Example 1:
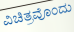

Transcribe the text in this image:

ವಿಚಿತ್ರವೊಂದು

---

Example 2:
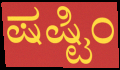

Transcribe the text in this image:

ಷಷ್ಟಿಂ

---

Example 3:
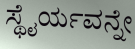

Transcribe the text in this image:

ಸ್ಥೈರ್ಯವನ್ನೇ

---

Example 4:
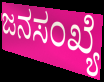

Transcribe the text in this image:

ಜನಸಂಖ್ಯೆ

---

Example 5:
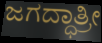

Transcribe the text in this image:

ಜಗದ್ಧಾತ್ರೀ